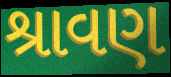
શ્રાવણ